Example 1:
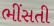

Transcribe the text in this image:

ભીંસતી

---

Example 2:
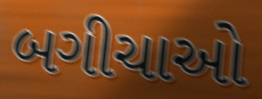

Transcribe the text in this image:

બગીચાઓ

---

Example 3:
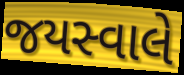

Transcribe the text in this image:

જયસ્વાલે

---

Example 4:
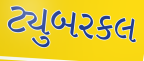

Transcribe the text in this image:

ટ્યુબરકલ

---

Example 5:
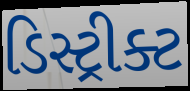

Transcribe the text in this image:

ડિસ્ટ્રીક્ટ